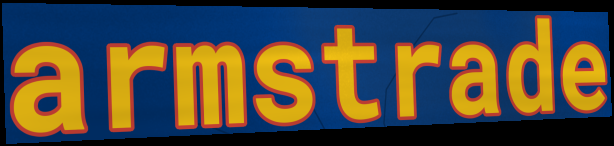
armstrade